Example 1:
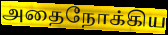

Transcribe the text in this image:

அதைநோக்கிய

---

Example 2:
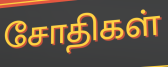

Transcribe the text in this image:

சோதிகள்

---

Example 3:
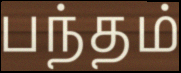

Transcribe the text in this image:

பந்தம்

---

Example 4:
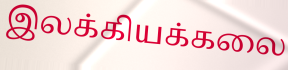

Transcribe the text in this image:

இலக்கியக்கலை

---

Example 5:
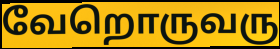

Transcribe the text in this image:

வேறொருவரு